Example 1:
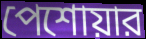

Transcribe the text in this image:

পেশোয়ার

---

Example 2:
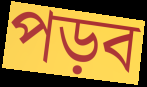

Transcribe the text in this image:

পড়ব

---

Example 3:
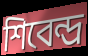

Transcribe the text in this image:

শিবেন্দ্র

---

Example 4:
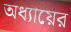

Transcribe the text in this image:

অধ্যায়ের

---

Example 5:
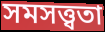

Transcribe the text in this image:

সমসত্ত্বতা